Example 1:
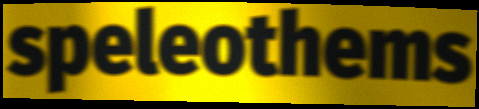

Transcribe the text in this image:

speleothems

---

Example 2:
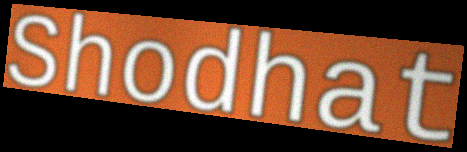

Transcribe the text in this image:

Shodhat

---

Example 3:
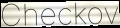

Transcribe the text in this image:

Checkov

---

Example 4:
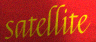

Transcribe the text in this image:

satellite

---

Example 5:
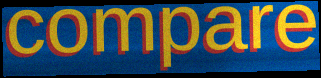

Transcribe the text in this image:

compare